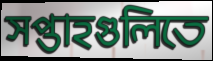
সপ্তাহগুলিতে